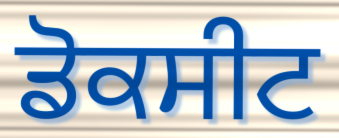
ਡੋਕਸੀਟ